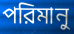
পরিমানু